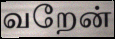
வறேன்